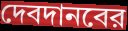
দেবদানবের